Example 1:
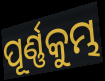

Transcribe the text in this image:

ପୂର୍ଣ୍ଣକୁମ୍ଭ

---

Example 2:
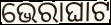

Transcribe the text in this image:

ଭେରାଘାଟ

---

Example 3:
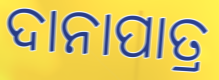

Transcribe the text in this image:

ଦାନାପାତ୍ର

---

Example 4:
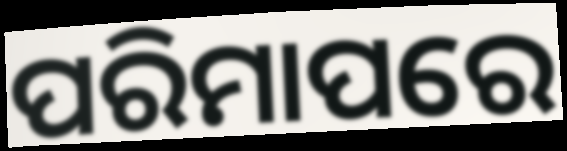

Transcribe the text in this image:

ପରିମାପରେ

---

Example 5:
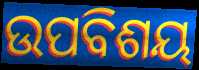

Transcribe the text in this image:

ଉପବିଶୟ